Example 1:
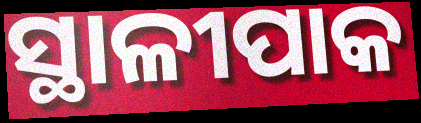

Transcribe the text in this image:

ସ୍ଥାଳୀପାକ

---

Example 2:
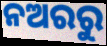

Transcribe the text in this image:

ନଅରରୁ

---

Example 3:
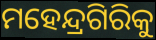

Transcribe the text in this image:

ମହେନ୍ଦ୍ରଗିରିକୁ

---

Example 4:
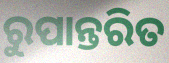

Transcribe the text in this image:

ରୁପାନ୍ତରିତ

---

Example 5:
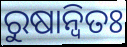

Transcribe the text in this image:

ରୁଷାନ୍ଵିତଃ